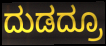
ದುಡದ್ರೂ